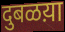
दुबळय़ा